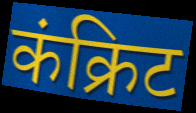
कंक्रिट